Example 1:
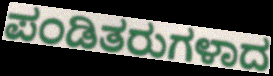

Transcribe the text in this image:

ಪಂಡಿತರುಗಳಾದ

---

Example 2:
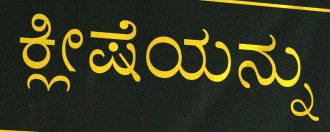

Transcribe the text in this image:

ಕ್ಲೀಷೆಯನ್ನು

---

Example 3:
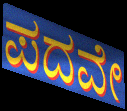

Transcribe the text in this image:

ಪದವೇ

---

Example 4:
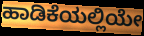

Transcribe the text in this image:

ಹಾಡಿಕೆಯಲ್ಲಿಯೇ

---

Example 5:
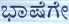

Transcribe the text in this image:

ಭಾಷೆಗೇ